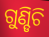
ଗୁଣ୍ଡିଚି